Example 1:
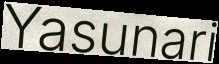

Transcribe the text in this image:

Yasunari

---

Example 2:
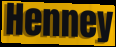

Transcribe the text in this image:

Henney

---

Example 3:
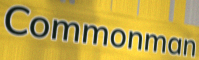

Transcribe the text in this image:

Commonman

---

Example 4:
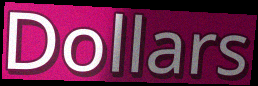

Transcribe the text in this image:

Dollars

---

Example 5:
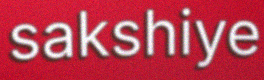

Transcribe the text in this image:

sakshiye